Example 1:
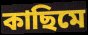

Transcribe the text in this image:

কাছিমে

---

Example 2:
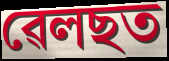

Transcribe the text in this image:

ৱেলছত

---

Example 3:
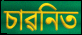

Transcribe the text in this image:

চাৱনিত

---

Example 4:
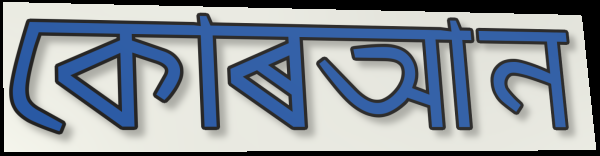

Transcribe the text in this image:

কোৰআন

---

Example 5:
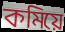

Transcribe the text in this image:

কমিয়ে